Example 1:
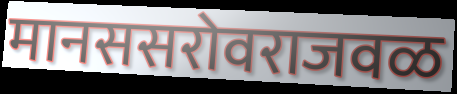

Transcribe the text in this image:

मानससरोवराजवळ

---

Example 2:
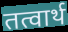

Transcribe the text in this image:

तत्वार्थ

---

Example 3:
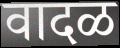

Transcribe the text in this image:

वादळ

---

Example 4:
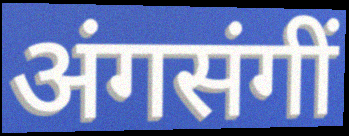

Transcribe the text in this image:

अंगसंगीं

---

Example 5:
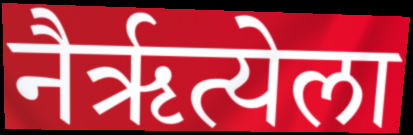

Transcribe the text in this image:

नैर्ऋत्येला